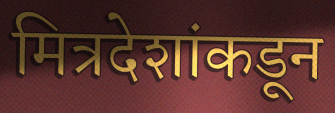
मित्रदेशांकडून